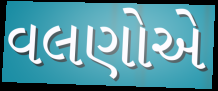
વલણોએ